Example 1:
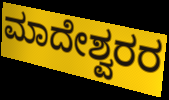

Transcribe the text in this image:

ಮಾದೇಶ್ವರರ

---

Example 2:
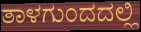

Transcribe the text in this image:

ತಾಳಗುಂದದಲ್ಲಿ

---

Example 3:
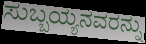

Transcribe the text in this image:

ಸುಬ್ಬಯ್ಯನವರನ್ನು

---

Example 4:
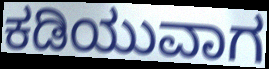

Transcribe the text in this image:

ಕಡಿಯುವಾಗ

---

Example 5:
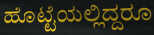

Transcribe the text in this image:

ಹೊಟ್ಟೆಯಲ್ಲಿದ್ದರೂ